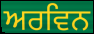
ਅਰਵਿਨ